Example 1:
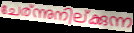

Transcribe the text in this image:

ചേര്ന്നുനില്ക്കുന്ന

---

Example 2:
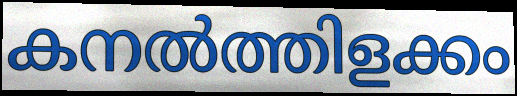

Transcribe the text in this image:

കനൽത്തിളക്കം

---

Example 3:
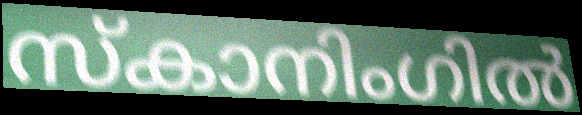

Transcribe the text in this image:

സ്കാനിംഗിൽ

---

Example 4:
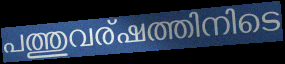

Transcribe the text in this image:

പത്തുവര്ഷത്തിനിടെ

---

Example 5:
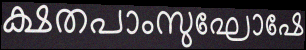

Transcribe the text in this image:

ക്ഷതപാംസുഘോഷേ